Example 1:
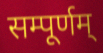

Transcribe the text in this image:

सम्पूर्णम्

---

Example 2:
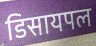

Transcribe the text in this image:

डिसायपल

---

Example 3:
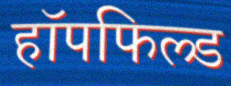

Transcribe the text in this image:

हॉपफिल्ड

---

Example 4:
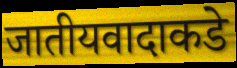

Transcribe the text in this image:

जातीयवादाकडे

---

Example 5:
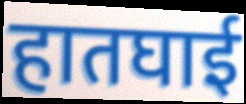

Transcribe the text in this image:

हातघाई